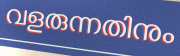
വളരുന്നതിനും